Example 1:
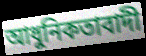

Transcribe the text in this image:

আধুনিকতাবাদী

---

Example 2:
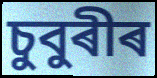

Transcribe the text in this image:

চুবুৰীৰ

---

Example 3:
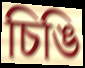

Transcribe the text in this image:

চিঙি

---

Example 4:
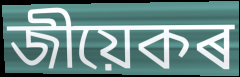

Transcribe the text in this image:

জীয়েকৰ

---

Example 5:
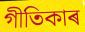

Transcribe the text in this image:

গীতিকাৰ